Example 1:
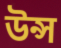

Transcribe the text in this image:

উন্স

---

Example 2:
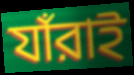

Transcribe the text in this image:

যাঁরাই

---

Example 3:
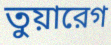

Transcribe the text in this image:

তুয়ারেগ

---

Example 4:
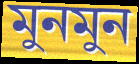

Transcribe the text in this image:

মুনমুন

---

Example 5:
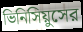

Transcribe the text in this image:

ভিনিসিয়ুসের